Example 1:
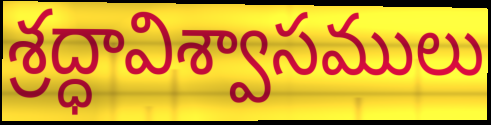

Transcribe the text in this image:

శ్రద్ధావిశ్వాసములు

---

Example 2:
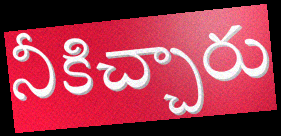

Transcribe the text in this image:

నీకిచ్చారు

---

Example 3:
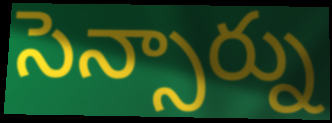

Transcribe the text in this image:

సెన్సార్ను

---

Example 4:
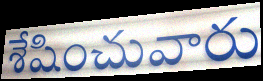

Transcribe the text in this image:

శేషించువారు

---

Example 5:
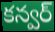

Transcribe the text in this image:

కన్వర్